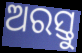
ଅରସ୍ତୁ